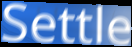
Settle